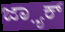
ಜ಼್ಯಾಕ್